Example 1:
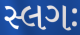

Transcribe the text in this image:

સ્લગઃ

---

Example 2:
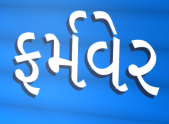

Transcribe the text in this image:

ફર્મવેર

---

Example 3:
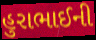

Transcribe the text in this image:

હુરાભાઈની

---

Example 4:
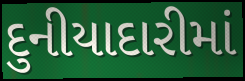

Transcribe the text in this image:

દુનીયાદારીમાં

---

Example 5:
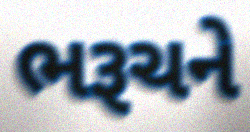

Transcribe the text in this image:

ભરૂચને